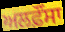
ਅਲਫ਼ੌਂਸਾ